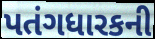
પતંગધારકની